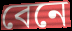
বেনে